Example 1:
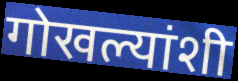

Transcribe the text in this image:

गोखल्यांशी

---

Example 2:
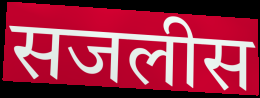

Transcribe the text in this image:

सजलीस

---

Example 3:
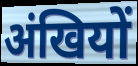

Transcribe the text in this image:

अंखियों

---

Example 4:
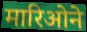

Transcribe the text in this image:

मारिओने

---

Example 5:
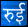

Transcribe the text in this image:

रुई